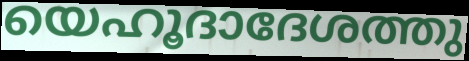
യെഹൂദാദേശത്തു